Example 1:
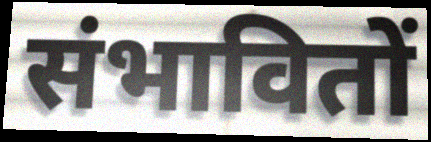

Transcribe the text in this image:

संभावितों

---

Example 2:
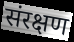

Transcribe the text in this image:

संरक्षण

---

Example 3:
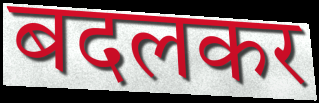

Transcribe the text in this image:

बदलकर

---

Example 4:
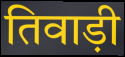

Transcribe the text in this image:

तिवाड़ी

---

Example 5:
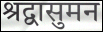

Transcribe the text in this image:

श्रद्वासुमन